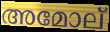
അമോല്